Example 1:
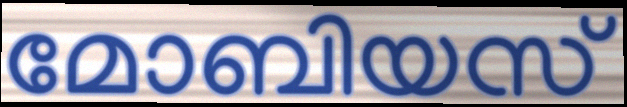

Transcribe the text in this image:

മോബിയസ്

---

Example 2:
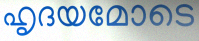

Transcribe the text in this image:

ഹൃദയമോടെ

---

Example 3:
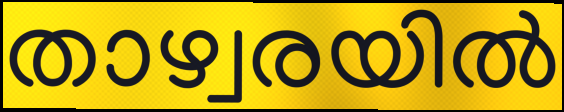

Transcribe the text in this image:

താഴ്വരയിൽ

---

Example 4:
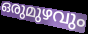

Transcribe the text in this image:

ഒരുമുഴവും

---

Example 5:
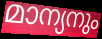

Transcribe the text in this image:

മാന്യനും